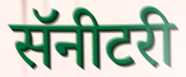
सॅनीटरी